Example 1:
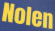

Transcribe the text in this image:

Nolen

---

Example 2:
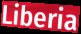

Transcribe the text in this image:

Liberia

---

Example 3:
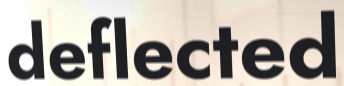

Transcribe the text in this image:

deflected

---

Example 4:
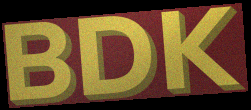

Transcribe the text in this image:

BDK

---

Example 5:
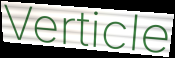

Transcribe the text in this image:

Verticle